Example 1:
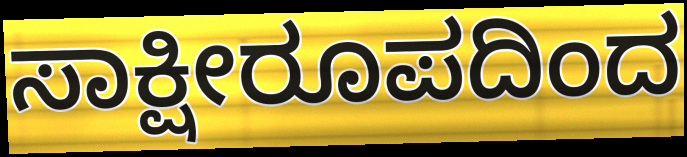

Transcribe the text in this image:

ಸಾಕ್ಷೀರೂಪದಿಂದ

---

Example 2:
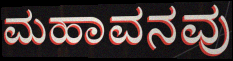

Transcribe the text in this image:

ಮಹಾವನವು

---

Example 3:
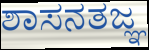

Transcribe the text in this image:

ಶಾಸನತಜ್ಞ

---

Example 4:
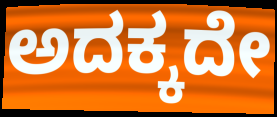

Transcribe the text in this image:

ಅದಕ್ಕದೇ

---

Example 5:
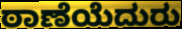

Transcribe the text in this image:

ಠಾಣೆಯೆದುರು